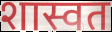
शास्वत